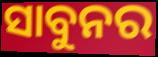
ସାବୁନର